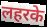
लहरके